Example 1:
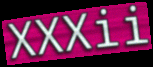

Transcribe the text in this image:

XXXii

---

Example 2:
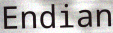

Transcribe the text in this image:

Endian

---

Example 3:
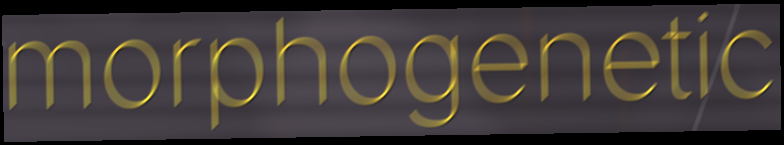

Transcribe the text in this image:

morphogenetic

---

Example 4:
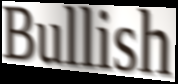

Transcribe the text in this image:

Bullish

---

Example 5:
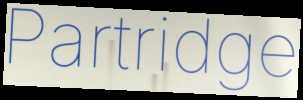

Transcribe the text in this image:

Partridge